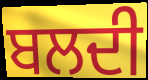
ਬਲਦੀ